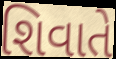
શિવાતે